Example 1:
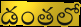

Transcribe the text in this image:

డంతలో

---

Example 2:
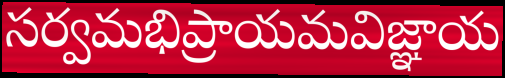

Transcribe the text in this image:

సర్వమభిప్రాయమవిజ్ఞాయ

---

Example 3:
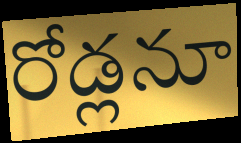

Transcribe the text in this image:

రోడ్లనూ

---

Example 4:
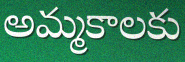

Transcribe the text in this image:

అమ్మకాలకు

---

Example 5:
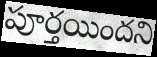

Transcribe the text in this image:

పూర్తయిందని